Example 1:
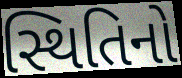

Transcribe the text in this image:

સ્થિતિનો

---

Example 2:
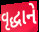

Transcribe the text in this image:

વૃદ્ધાને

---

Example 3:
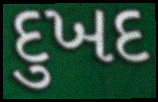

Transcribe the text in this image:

દુખદ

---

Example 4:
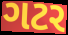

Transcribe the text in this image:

ગટર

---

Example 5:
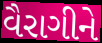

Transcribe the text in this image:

વૈરાગીને